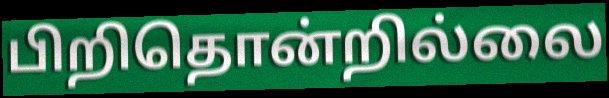
பிறிதொன்றில்லை